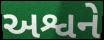
અશ્વને